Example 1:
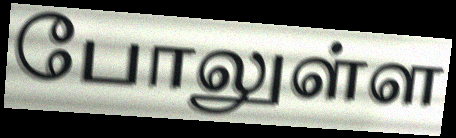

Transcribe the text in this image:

போலுள்ள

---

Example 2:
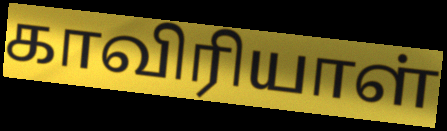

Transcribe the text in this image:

காவிரியாள்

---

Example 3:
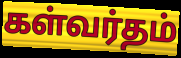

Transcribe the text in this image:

கள்வர்தம்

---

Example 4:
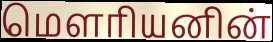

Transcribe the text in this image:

மௌரியனின்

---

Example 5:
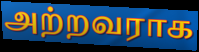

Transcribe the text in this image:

அற்றவராக